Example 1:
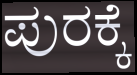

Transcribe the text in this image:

ಪುರಕ್ಕೆ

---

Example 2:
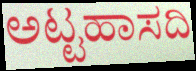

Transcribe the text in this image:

ಅಟ್ಟಹಾಸದಿ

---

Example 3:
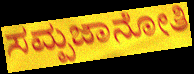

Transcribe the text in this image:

ಸಮ್ಪಜಾನೋತಿ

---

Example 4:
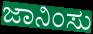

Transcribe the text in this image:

ಜಾನಿಂಸು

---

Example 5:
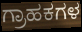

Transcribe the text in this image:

ಗ್ರಾಹಕಗಳ